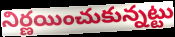
నిర్ణయించుకున్నట్టు